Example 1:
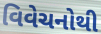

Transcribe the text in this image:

વિવેચનોથી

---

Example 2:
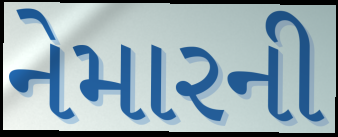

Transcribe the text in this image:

નેમારની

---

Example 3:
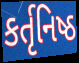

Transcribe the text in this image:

કર્તૃનિષ્ઠ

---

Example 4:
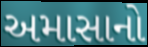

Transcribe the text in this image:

અમાસાનો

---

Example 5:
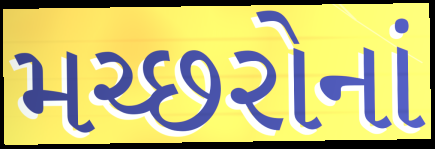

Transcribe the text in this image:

મચ્છરોનાં